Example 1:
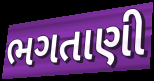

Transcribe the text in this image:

ભગતાણી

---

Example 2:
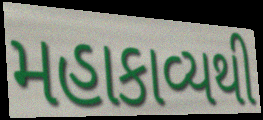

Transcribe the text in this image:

મહાકાવ્યથી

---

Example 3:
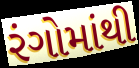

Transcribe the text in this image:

રંગોમાંથી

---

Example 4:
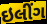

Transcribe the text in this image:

ઇલીંગ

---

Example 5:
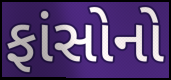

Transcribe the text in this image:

ફાંસોનો